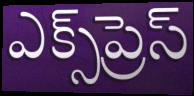
ఎక్స్‌ప్రెస్